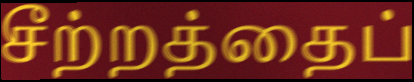
சீற்றத்தைப்